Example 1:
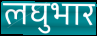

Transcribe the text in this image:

लघुभार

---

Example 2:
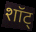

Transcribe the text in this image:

शॉट्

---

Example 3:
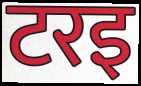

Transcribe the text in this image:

टरइ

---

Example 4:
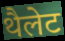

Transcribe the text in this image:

थैलेट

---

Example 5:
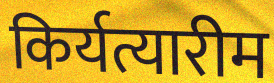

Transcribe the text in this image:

किर्यत्यारीम